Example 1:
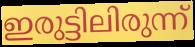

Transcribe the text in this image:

ഇരുട്ടിലിരുന്ന്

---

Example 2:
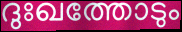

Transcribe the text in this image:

ദുഃഖത്തോടും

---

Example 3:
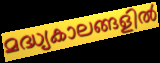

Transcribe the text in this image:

മദ്ധ്യകാലങ്ങളിൽ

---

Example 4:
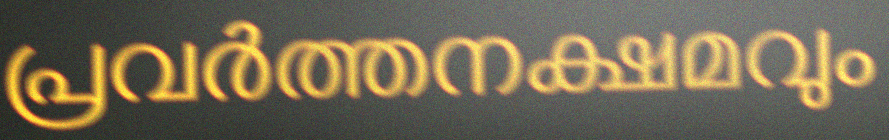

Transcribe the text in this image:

പ്രവർത്തനക്ഷമവും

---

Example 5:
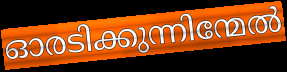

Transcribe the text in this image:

ഓരടിക്കുന്നിന്മേൽ